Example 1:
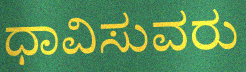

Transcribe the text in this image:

ಧಾವಿಸುವರು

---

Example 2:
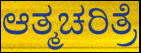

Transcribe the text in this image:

ಆತ್ಮಚರಿತ್ರೆ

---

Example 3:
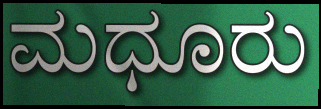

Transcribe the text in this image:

ಮಧೂರು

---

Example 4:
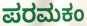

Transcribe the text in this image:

ಪರಮಕಂ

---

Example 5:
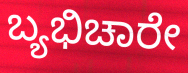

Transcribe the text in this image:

ಬ್ಯಭಿಚಾರೇ